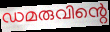
ഡമരുവിന്റെ